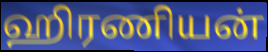
ஹிரணியன்